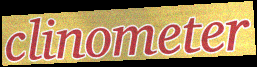
clinometer